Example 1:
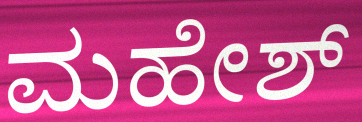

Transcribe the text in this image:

ಮಹೇಶ್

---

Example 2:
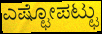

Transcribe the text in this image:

ಎಷ್ಟೋಪಟ್ಟು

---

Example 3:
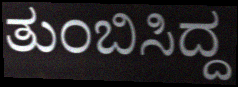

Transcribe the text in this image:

ತುಂಬಿಸಿದ್ದ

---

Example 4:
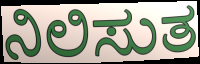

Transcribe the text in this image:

ನಿಲಿಸುತ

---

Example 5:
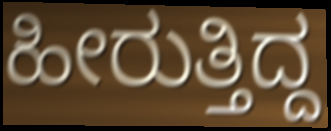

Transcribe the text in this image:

ಹೀರುತ್ತಿದ್ದ